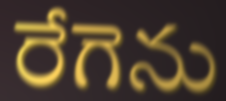
రేగెను